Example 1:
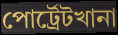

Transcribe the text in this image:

পোর্ট্রেটখানা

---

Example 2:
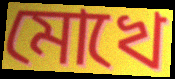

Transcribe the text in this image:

মোখে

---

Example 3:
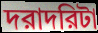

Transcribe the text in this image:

দরাদরিটা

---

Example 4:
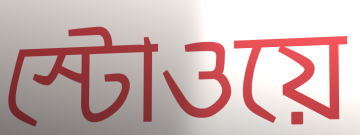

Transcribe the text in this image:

স্টোওয়ে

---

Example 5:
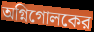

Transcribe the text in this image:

অগ্নিগোলকের